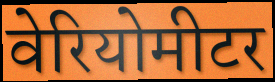
वेरियोमीटर